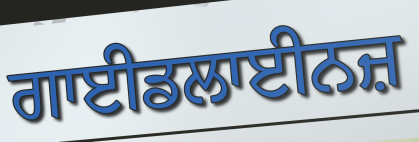
ਗਾਈਡਲਾਈਨਜ਼